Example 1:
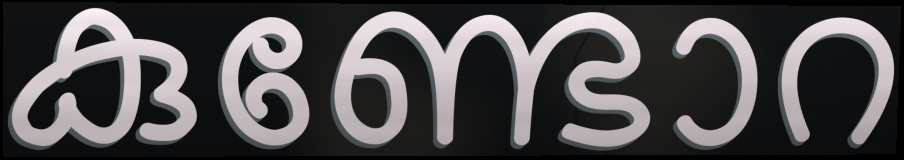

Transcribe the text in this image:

കുണ്ടോറ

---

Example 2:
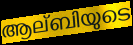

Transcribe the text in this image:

ആല്ബിയുടെ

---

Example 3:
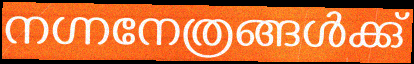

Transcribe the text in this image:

നഗ്നനേത്രങ്ങൾക്കു്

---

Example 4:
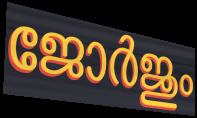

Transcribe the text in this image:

ജോർജും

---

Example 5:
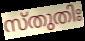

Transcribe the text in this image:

സ്തുതിഃ